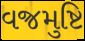
વજ્રમુષ્ટિ